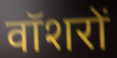
वॉशरों